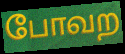
போவற